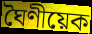
ঘৈণীয়েক